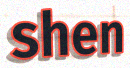
shen